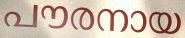
പൗരനായ